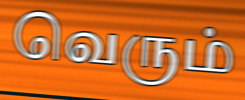
வெரும்